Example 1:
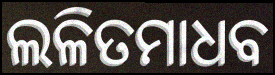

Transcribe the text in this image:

ଲଳିତମାଧବ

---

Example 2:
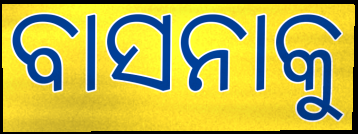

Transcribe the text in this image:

ବାସନାକୁ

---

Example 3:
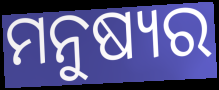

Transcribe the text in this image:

ମନୁଷ୍ୟର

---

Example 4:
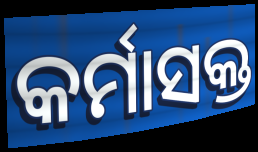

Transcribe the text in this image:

କର୍ମାସକ୍ତ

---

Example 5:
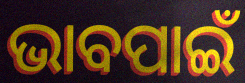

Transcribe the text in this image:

ଭାବପାଇଁ